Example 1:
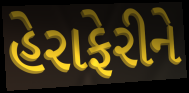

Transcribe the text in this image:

હેરાફેરીને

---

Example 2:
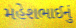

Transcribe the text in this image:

મહેશભાઈનું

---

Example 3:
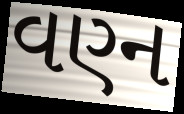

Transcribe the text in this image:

વણ્ન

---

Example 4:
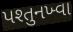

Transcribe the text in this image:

પશ્તુનખ્વા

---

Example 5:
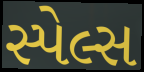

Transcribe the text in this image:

સ્પેલ્સ